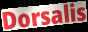
Dorsalis